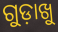
ଗୁଡ଼ାଖୁ